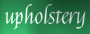
upholstery